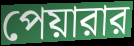
পেয়ারার